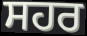
ਸਹਰ